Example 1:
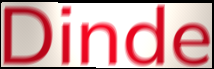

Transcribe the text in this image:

Dinde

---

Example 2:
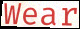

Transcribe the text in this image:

Wear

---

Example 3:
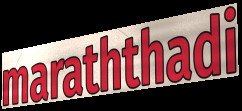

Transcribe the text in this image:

maraththadi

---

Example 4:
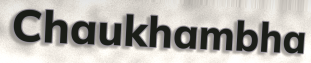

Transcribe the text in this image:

Chaukhambha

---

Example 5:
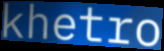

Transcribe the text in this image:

khetro